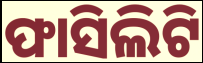
ଫାସିଲିଟି